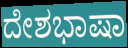
ದೇಶಭಾಷಾ